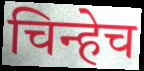
चिन्हेच